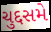
ચુદ્દસમે